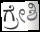
ಗ್ರೇಶಿ